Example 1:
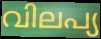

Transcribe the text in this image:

വിലപ്യ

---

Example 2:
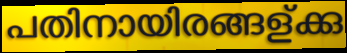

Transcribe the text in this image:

പതിനായിരങ്ങള്ക്കു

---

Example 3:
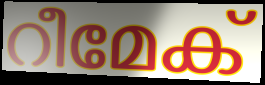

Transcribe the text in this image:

റീമേക്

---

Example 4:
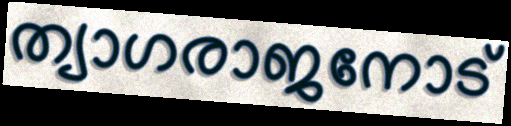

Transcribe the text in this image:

ത്യാഗരാജനോട്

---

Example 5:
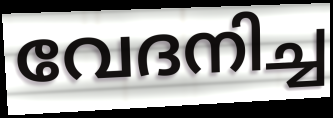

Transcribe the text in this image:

വേദനിച്ച